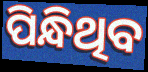
ପିନ୍ଧିଥିବ